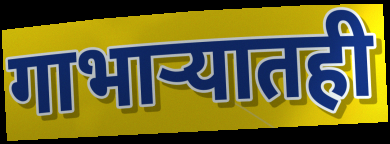
गाभाऱ्यातही